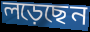
লড়েছেন